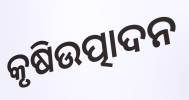
କୃଷିଉତ୍ପାଦନ